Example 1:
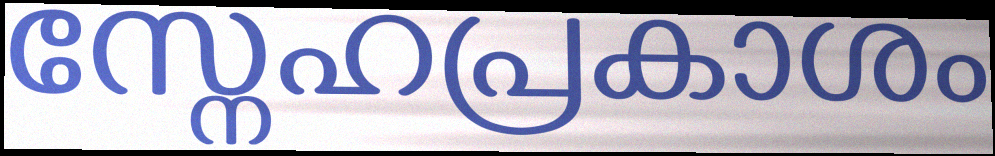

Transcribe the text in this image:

സ്നേഹപ്രകാശം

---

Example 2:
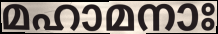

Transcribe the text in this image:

മഹാമനാഃ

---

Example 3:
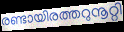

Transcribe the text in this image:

രണ്ടായിരത്തറുനൂറ്റി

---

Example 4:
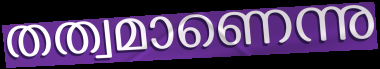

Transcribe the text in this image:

തത്വമാണെന്നു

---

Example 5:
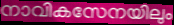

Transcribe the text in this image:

നാവികസേനയിലും